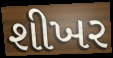
શીખર